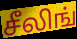
சீலிங்